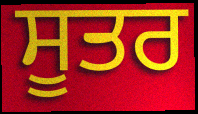
ਸੂਤਰ